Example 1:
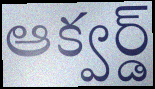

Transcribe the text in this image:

ఆక్వర్డ్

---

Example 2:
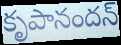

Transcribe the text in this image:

కృపానందన్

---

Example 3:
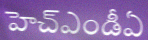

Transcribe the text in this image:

హెచ్ఎండీఏ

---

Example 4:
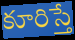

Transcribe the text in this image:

కూరిస్తే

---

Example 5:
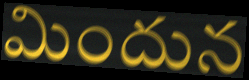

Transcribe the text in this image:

మిందున